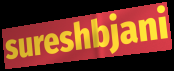
sureshbjani